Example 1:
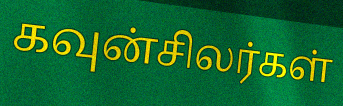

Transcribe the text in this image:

கவுன்சிலர்கள்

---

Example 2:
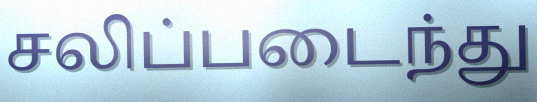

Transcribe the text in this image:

சலிப்படைந்து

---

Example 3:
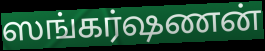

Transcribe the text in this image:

ஸங்கர்ஷணன்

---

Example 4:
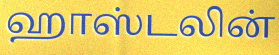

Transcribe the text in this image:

ஹாஸ்டலின்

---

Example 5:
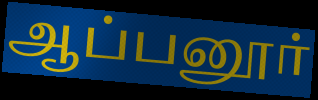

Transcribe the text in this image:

ஆப்பனூர்